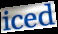
iced